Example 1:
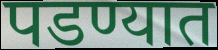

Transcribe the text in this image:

पडण्यात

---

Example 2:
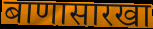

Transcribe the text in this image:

बाणासारखा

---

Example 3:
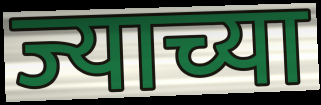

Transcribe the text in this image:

ज्याच्या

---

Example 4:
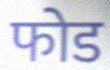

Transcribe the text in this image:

फोड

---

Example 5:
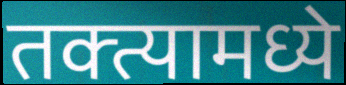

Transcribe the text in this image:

तक्‍त्यामध्ये